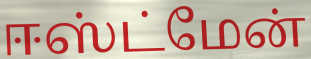
ஈஸ்ட்மேன்